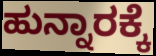
ಹುನ್ನಾರಕ್ಕೆ